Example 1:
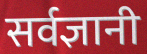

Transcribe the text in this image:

सर्वज्ञानी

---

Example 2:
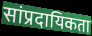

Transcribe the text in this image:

सांप्रदायिकता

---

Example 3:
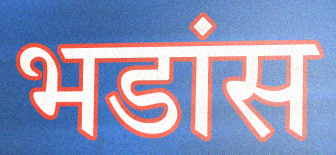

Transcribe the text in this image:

भडांस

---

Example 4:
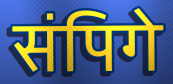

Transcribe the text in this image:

संपिगे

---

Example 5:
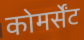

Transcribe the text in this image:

कोमर्सेंट